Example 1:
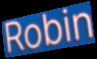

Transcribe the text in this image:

Robin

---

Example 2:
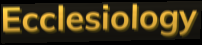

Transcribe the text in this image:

Ecclesiology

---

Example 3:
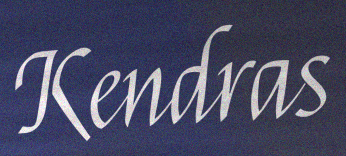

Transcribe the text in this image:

Kendras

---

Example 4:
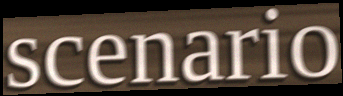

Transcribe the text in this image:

scenario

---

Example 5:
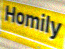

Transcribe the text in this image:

Homily